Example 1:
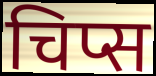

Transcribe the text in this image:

चिप्स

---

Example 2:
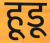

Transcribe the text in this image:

हूडू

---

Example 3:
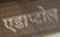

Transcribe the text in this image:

एडाप्टोल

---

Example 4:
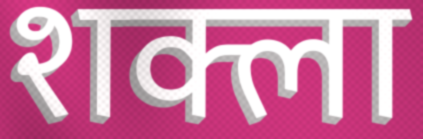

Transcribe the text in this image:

शक्ला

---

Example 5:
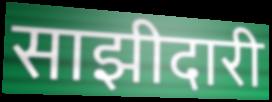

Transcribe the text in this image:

साझीदारी